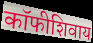
कॉफीशिवाय